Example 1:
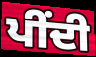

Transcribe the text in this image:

ਪੀਂਦੀ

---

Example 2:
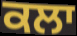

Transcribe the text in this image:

ਕਲਾ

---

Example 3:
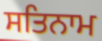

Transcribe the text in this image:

ਸਤਿਨਾਮ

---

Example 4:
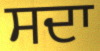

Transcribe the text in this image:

ਸਦਾ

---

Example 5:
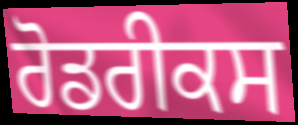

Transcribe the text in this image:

ਰੋਡਰੀਕਸ